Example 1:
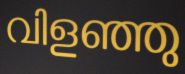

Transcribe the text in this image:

വിളഞ്ഞു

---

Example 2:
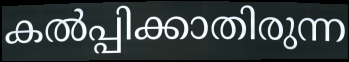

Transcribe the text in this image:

കൽപ്പിക്കാതിരുന്ന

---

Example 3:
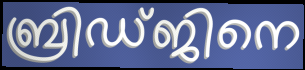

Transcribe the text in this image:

ബ്രിഡ്ജിനെ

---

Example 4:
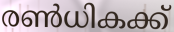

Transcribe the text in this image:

രൺധികക്ക്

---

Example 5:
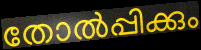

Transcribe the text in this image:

തോൽപ്പിക്കും